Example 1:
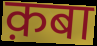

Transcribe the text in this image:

क़बा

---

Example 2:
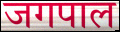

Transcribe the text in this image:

जगपाल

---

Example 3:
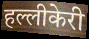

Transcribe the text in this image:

हल्लीकेरी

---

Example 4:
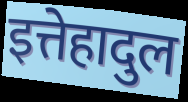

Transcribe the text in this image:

इत्तेहादुल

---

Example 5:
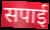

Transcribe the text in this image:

सपाई